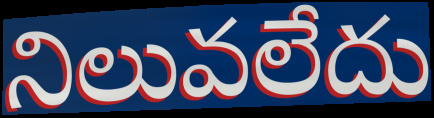
నిలువలేదు